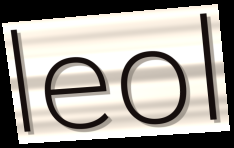
leol